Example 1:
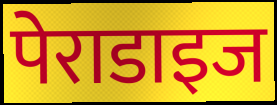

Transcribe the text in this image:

पेराडाइज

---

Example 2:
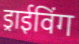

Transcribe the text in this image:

ड्राईविंग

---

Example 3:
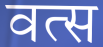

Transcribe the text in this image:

वत्स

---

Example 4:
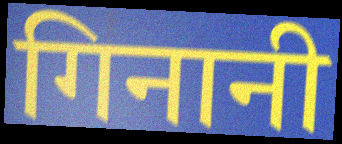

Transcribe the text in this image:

गिनानी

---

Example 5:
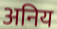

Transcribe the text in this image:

अनिय